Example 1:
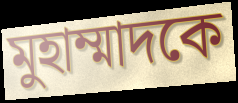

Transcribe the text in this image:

মুহাম্মাদকে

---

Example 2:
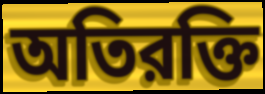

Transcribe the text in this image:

অতিরক্তি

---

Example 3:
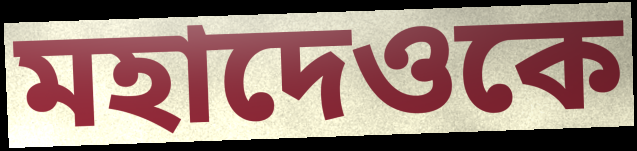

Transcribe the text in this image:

মহাদেওকে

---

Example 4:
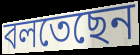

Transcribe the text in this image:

বলতেছেন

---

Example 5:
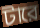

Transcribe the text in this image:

টারে